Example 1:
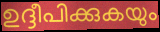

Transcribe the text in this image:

ഉദ്ദീപിക്കുകയും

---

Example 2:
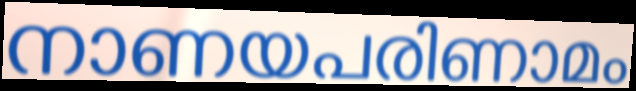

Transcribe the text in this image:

നാണയപരിണാമം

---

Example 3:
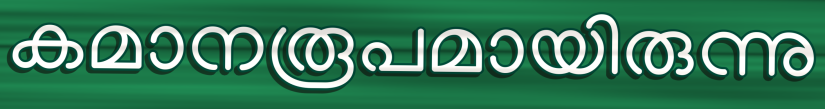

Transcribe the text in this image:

കമാനരൂപമായിരുന്നു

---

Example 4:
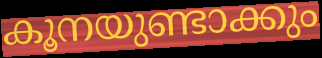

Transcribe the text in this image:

കൂനയുണ്ടാക്കും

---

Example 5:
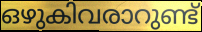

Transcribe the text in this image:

ഒഴുകിവരാറുണ്ട്